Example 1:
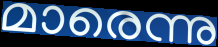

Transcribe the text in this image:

മാരെന്നു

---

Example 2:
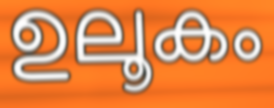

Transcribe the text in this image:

ഉലൂകം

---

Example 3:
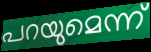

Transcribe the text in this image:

പറയുമെന്ന്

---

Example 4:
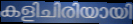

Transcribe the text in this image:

കളിചിരിയായി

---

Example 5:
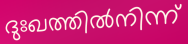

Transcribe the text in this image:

ദുഃഖത്തിൽനിന്ന്